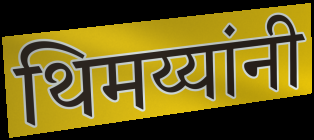
थिमय्यांनी